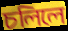
চলিলে